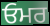
ਓਮਰ